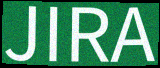
JIRA